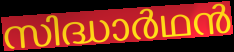
സിദ്ധാർഥൻ